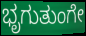
ಭೃಗುತುಂಗೇ